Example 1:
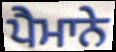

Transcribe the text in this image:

ਪੈਮਾਨੇ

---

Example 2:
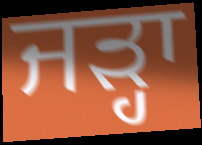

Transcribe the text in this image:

ਜੜ੍ਹਾ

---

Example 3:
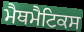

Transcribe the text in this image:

ਮੈਥਮੈਟਿਕਸ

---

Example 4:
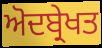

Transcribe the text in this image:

ਅੋਦਬ੍ਰੇਖਤ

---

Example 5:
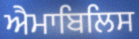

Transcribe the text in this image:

ਐਮਾਬਿਲਿਸ